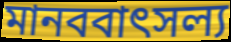
মানববাৎসল্য